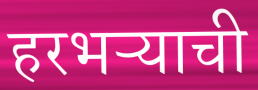
हरभऱ्याची